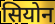
सियोन